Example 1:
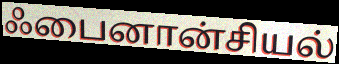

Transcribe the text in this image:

ஃபைனான்சியல்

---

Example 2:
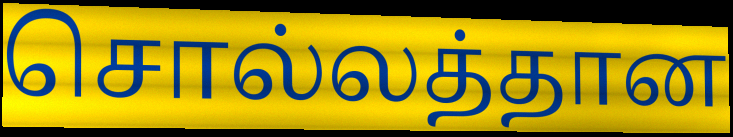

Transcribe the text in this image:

சொல்லத்தான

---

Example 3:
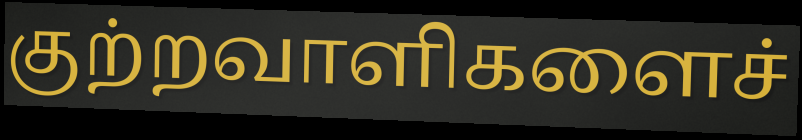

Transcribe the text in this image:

குற்றவாளிகளைச்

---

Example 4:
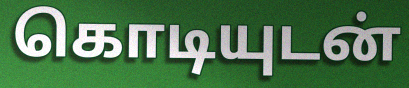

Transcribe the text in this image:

கொடியுடன்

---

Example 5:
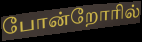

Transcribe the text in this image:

போன்றோரில்